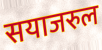
सयाजरुल